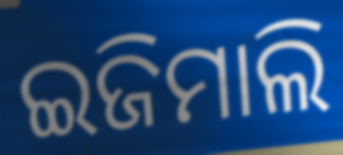
ଇଜିମାଲି